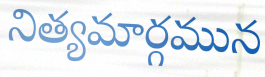
నిత్యమార్గమున